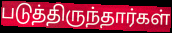
படுத்திருந்தார்கள்